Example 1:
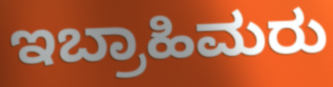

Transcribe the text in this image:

ಇಬ್ರಾಹಿಮರು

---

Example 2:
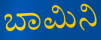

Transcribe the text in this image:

ಬಾಮಿನಿ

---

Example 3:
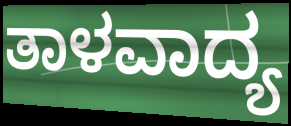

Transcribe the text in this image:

ತಾಳವಾದ್ಯ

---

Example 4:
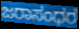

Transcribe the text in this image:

ಜರಾಸಂಧರ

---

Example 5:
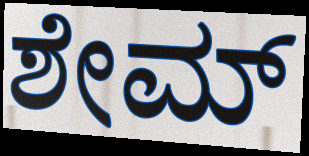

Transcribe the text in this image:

ಶೇಮ್